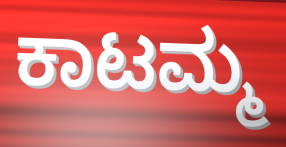
ಕಾಟಮ್ಮ